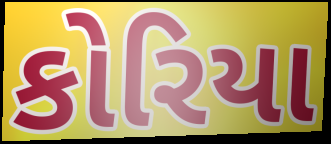
કોરિયા